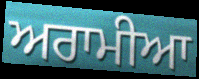
ਅਰਾਮੀਆ